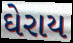
ઘેરાય